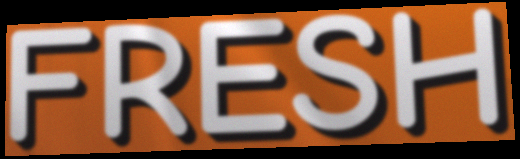
FRESH